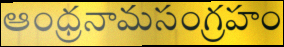
ఆంధ్రనామసంగ్రహం